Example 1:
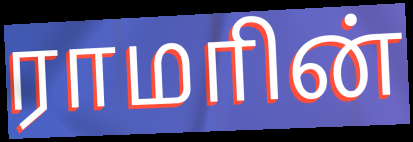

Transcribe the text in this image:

ராமரின்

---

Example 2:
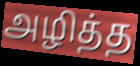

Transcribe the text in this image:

அழித்த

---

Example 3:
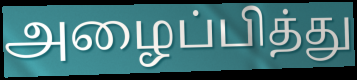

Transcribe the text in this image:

அழைப்பித்து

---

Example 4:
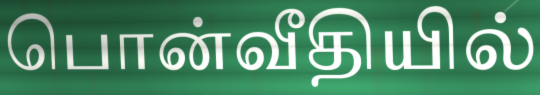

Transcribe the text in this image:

பொன்வீதியில்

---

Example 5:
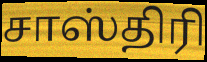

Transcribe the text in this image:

சாஸ்திரி